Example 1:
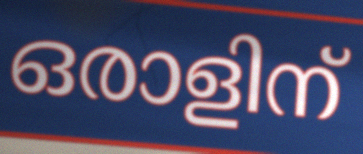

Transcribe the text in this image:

ഒരാളിന്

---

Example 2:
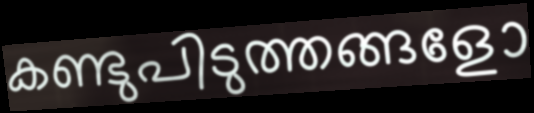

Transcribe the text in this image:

കണ്ടുപിടുത്തങ്ങളോ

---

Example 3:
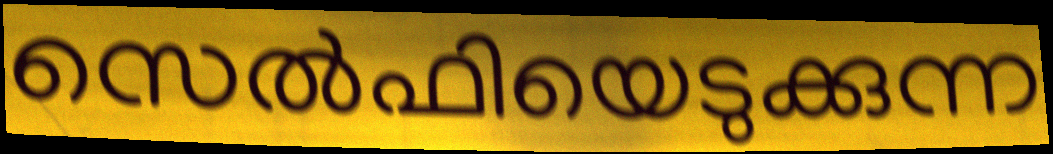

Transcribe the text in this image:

സെൽഫിയെടുക്കുന്ന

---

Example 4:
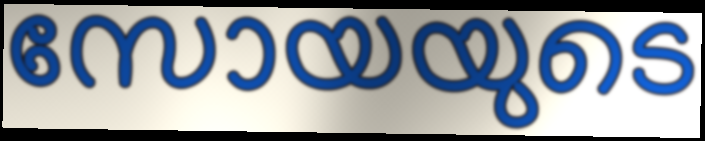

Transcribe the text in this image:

സോയയുടെ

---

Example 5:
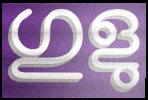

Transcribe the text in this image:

ഗുളു